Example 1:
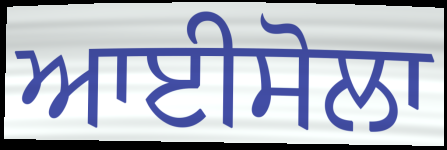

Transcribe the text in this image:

ਆਈਸੋਲਾ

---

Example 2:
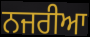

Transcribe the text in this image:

ਨਜਰੀਆ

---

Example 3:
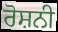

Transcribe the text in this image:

ਰੋਸ਼ਨੀ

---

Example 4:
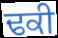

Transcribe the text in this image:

ਢਕੀ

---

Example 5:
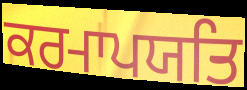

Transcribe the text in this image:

ਕਰ੍ਮਾਪਯਤਿ